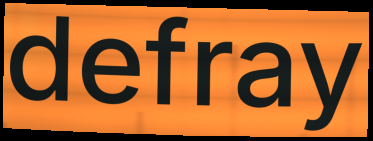
defray